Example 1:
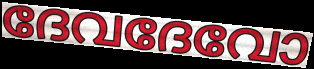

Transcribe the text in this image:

ദേവദേവോ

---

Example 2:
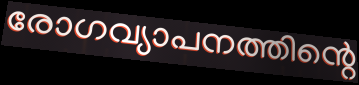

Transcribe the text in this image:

രോഗവ്യാപനത്തിന്റെ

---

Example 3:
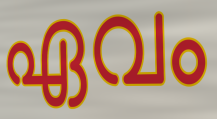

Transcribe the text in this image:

ഏവം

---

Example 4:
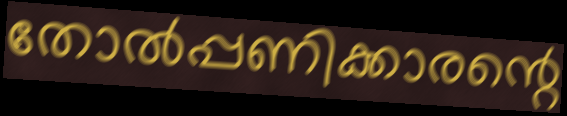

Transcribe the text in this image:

തോൽപ്പണിക്കാരന്റെ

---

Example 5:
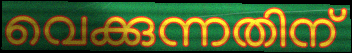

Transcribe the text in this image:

വെക്കുന്നതിന്